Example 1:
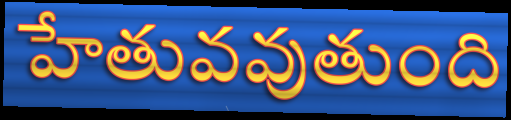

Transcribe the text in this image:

హేతువవుతుంది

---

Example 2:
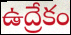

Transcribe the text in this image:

ఉద్రేకం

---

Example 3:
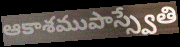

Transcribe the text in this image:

ఆకాశముపాస్స్వేతి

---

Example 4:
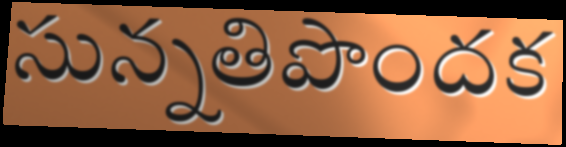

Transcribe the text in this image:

సున్నతిపొందక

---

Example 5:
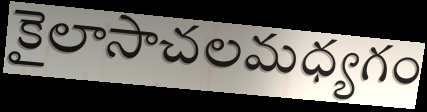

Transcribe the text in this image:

కైలాసాచలమధ్యగం